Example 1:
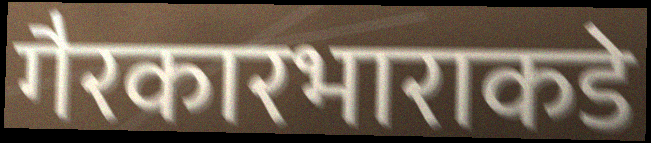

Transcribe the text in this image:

गैरकारभाराकडे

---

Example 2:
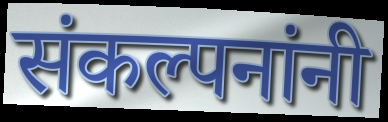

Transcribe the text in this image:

संकल्पनांनी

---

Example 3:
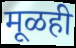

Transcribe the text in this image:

मूळही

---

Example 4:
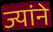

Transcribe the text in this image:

ज्यांने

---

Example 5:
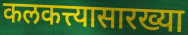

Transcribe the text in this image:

कलकत्त्यासारख्या